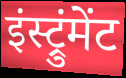
इंस्ट्रुंमेंट